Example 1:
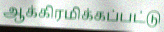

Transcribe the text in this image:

ஆக்கிரமிக்கப்பட்டு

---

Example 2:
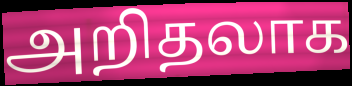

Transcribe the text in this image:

அறிதலாக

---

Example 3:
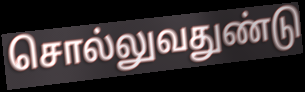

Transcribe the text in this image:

சொல்லுவதுண்டு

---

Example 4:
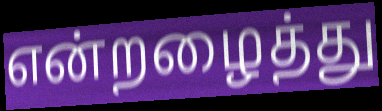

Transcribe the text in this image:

என்றழைத்து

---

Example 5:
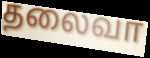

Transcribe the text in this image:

தலைவா